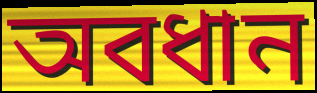
অবধান